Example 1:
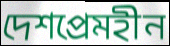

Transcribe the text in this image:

দেশপ্রেমহীন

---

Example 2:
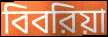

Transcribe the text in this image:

বিবরিয়া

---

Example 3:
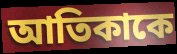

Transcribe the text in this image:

আতিকাকে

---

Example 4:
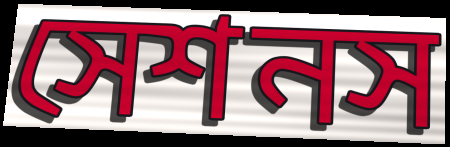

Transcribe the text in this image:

সেশনস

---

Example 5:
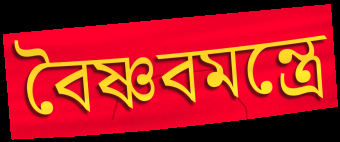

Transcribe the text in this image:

বৈষ্ণবমন্ত্রে